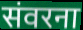
संवरना